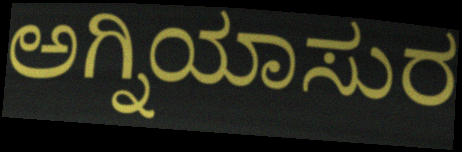
ಅಗ್ನಿಯಾಸುರ